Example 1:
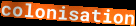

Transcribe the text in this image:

colonisation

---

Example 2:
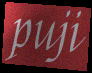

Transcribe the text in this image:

puji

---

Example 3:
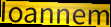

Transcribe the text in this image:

Ioannem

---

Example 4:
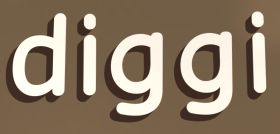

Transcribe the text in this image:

diggi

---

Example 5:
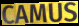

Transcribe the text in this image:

CAMUS